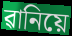
ৱানিয়ে